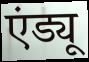
एंड्यू